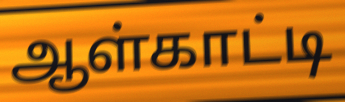
ஆள்காட்டி